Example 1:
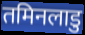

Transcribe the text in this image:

तमिनलाडु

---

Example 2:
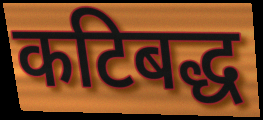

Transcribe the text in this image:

कटिबद्ध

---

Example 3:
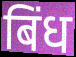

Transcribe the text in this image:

बिंध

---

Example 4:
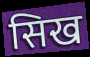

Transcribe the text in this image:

सिख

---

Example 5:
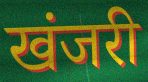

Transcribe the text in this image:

खंजरी